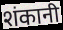
शंकानी